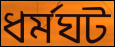
ধর্মঘট